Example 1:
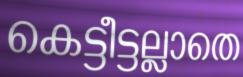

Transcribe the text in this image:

കെട്ടീട്ടല്ലാതെ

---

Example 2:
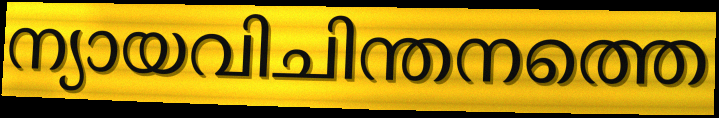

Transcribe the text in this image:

ന്യായവിചിന്തനത്തെ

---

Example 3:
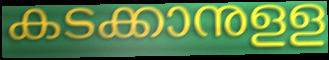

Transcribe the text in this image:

കടക്കാനുളള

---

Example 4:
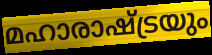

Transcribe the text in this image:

മഹാരാഷ്ട്രയും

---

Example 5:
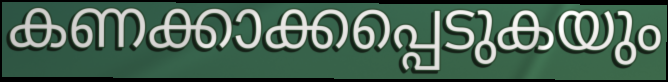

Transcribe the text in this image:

കണക്കാക്കപ്പെടുകയും